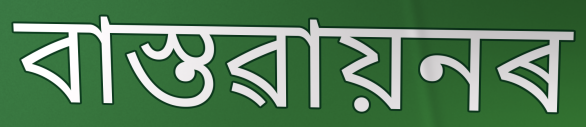
বাস্তৱায়নৰ